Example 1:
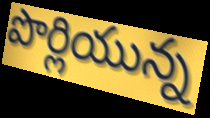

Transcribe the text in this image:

పొర్లియున్న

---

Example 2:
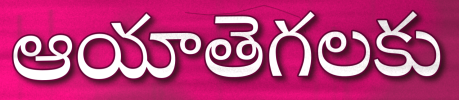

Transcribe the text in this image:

ఆయాతెగలకు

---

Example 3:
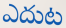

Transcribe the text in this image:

ఎదుట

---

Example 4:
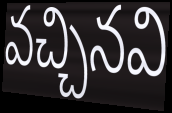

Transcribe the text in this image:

వచ్చినవి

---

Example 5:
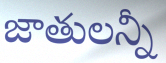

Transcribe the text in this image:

జాతులన్నీ